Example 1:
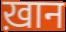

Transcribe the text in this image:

ख़ान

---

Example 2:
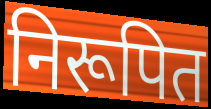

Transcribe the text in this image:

निरूपित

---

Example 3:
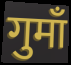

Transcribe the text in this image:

गुमाँ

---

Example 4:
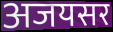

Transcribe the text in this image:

अजयसर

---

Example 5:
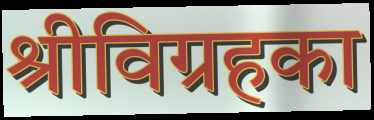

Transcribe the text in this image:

श्रीविग्रहका